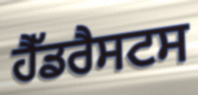
ਹੈੱਡਰੈਸਟਸ